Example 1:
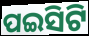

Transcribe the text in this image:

ପଇସିଟି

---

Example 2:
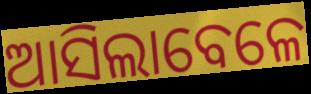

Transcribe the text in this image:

ଆସିଲାବେଳେ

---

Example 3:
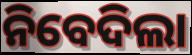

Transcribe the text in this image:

ନିବେଦିଲା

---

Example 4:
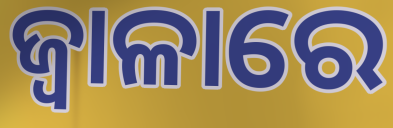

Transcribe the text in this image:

ଜ୍ଵାଳାରେ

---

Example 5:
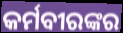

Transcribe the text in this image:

କର୍ମବୀରଙ୍କର